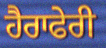
ਹੈਰਾਫੇਰੀ